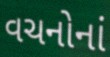
વચનોનાં